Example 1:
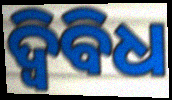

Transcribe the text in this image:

ଦ୍ୱିବିଧ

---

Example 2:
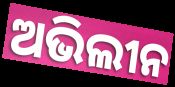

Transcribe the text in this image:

ଅଭିଲୀନ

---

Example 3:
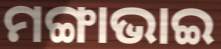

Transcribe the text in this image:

ମଙ୍ଗାଭାଇ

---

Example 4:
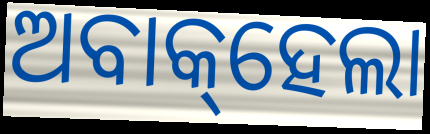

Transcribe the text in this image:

ଅବାକ୍‌ହେଲା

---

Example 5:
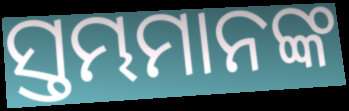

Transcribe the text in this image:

ସ୍ତମ୍ଭମାନଙ୍କ